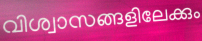
വിശ്വാസങ്ങളിലേക്കും